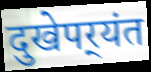
दुखेपर्यंत